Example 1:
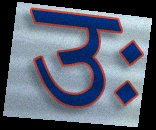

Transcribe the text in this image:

उः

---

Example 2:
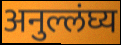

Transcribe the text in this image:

अनुल्लंघ्य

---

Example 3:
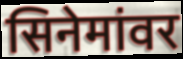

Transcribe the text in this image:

सिनेमांवर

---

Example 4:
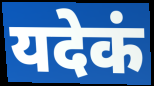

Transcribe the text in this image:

यदेकं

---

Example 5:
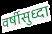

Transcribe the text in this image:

वर्षीसुध्दा